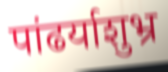
पांढर्याशुभ्र